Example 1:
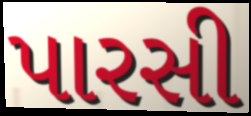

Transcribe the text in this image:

પારસી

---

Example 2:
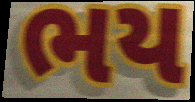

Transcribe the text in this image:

ભય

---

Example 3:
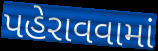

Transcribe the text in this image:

પહેરાવવામાં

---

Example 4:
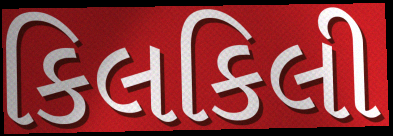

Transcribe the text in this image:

કિલકિલી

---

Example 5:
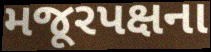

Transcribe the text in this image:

મજૂરપક્ષના